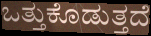
ಒತ್ತುಕೊಡುತ್ತದೆ